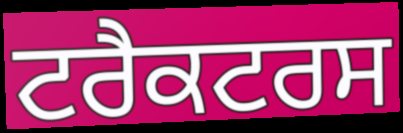
ਟਰੈਕਟਰਸ